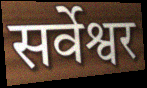
सर्वेश्वर